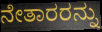
ನೇತಾರರನ್ನು